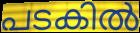
പടകിൽ